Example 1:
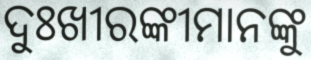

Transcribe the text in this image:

ଦୁଃଖୀରଙ୍କୀମାନଙ୍କୁ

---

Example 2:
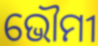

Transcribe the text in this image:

ଭୌମୀ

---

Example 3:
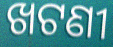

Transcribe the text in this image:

ଖଟଣୀ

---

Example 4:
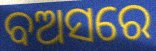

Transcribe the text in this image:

ବଅସରେ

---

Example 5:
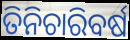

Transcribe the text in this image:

ତିନିଚାରିବର୍ଷ